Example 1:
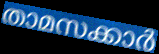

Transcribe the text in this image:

താമസക്കാർ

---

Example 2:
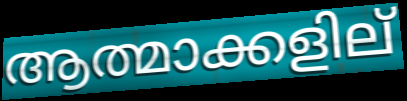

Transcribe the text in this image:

ആത്മാക്കളില്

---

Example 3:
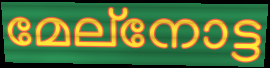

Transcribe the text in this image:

മേല്നോട്ട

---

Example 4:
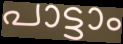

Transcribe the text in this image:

പാട്ടാം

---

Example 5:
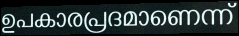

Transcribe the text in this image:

ഉപകാരപ്രദമാണെന്ന്